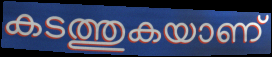
കടത്തുകയാണ്